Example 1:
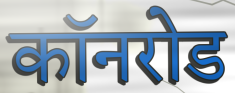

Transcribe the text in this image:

कॉनरोड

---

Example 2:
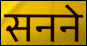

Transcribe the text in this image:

सनने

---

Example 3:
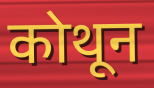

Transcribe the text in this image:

कोथून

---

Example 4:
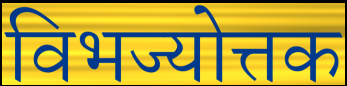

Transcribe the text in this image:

विभज्योत्तक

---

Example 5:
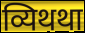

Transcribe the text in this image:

व्यिथथा